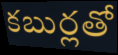
కబుర్లతో